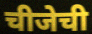
चीजेची